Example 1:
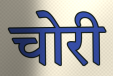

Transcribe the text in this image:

चोरी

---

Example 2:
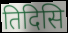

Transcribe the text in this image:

तिदिसि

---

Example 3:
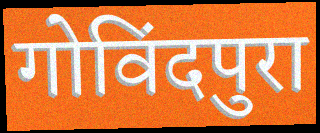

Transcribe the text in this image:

गोविंदपुरा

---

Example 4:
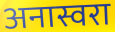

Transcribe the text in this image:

अनास्वरा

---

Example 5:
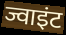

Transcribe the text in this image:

ज्वाइंट